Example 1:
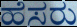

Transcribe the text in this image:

ಹೆಸರು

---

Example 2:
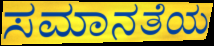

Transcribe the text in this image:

ಸಮಾನತೆಯ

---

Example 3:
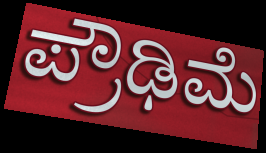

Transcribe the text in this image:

ಪ್ರೌಢಿಮೆ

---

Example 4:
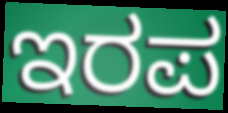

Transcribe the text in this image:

ಇರಪ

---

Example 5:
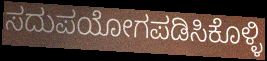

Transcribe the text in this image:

ಸದುಪಯೋಗಪಡಿಸಿಕೊಳ್ಳಿ